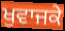
ਖੁਵਾਜਕੇ